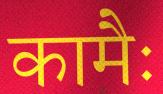
कामैः